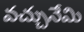
వచ్చునేమి